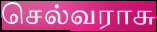
செல்வராசு